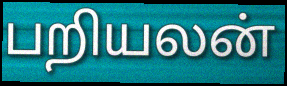
பறியலன்